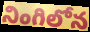
నింగిలోన